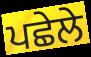
ਪਛੇਲੇ